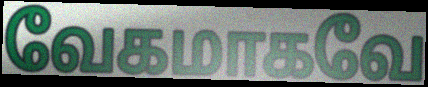
வேகமாகவே